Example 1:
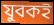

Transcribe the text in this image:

যুবকই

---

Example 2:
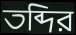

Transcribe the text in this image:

তব্দির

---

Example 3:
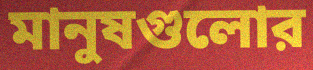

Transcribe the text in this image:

মানুষগুলোর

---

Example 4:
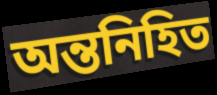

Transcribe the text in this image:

অন্তনিহিত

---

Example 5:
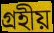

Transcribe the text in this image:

গ্রহীয়